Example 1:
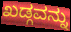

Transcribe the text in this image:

ಖಡ್ಗವನ್ನು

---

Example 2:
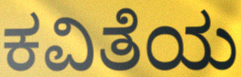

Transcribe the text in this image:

ಕವಿತೆಯ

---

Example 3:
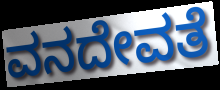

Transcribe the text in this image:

ವನದೇವತೆ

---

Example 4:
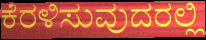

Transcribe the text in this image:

ಕೆರಳಿಸುವುದರಲ್ಲಿ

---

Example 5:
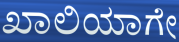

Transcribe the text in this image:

ಖಾಲಿಯಾಗೇ